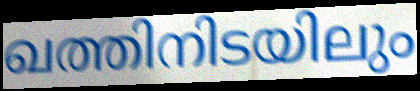
ഖത്തിനിടയിലും